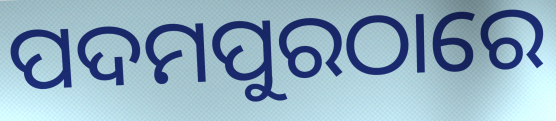
ପଦମପୁରଠାରେ